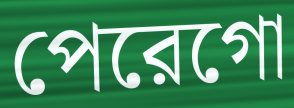
পেরেগো